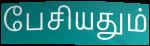
பேசியதும்